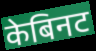
केबिनट